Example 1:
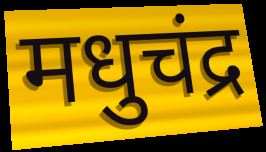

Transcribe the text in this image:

मधुचंद्र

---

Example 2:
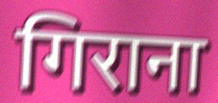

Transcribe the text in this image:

गिराना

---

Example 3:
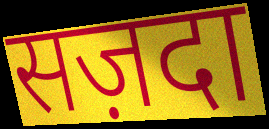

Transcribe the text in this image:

सज़दा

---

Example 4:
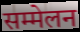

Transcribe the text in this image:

सम्‍मेलन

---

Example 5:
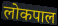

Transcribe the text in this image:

लोकपाल